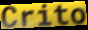
Crito